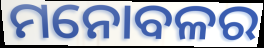
ମନୋବଳର